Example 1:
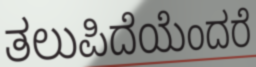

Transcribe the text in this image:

ತಲುಪಿದೆಯೆಂದರೆ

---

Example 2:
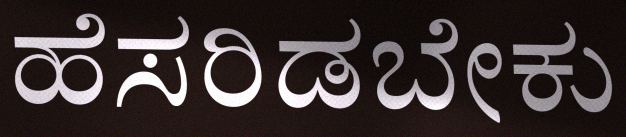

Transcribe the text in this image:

ಹೆಸರಿಡಬೇಕು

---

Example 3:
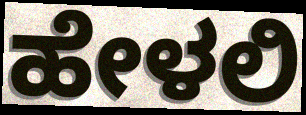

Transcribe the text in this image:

ಹೇಳಲಿ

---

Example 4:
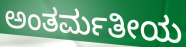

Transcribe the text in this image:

ಅಂತರ್ಮತೀಯ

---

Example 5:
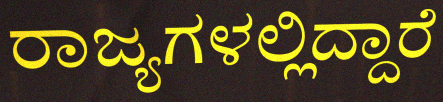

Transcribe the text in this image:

ರಾಜ್ಯಗಳಲ್ಲಿದ್ದಾರೆ